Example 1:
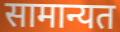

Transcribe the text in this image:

सामान्यत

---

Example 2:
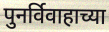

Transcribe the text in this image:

पुनर्विवाहाच्या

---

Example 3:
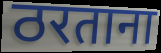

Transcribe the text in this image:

ठरताना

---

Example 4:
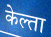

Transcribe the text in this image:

केल्ता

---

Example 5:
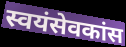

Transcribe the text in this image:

स्वयंसेवकांस